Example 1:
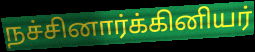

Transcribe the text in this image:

நச்சினார்க்கினியர்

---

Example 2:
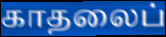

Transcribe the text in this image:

காதலைப்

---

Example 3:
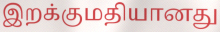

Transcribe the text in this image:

இறக்குமதியானது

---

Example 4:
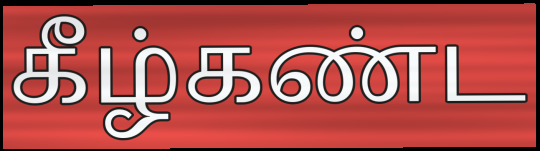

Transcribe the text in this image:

கீழ்கண்ட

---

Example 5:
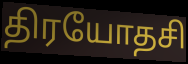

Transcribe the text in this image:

திரயோதசி